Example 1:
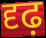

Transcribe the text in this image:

दृढ़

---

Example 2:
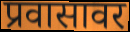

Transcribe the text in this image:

प्रवासावर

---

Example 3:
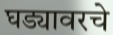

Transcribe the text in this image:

घड्यावरचे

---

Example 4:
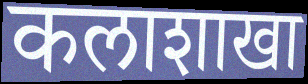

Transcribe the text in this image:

कलाशाखा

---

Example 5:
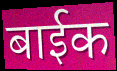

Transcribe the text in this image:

बाईक